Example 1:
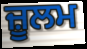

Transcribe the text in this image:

ਜ਼ੂਲਮ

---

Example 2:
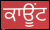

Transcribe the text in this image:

ਕਾਊਂਟ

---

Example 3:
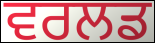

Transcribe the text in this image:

ਵਰਲਡ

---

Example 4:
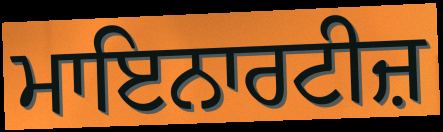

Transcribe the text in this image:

ਮਾਇਨਾਰਟੀਜ਼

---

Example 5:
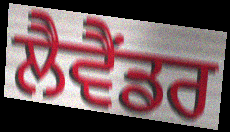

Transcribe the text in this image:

ਲੈਵੈਂਡਰ